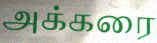
அக்கரை